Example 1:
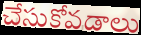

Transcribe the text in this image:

చేసుకోవడాలు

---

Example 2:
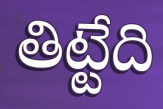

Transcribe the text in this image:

తిట్టేది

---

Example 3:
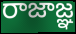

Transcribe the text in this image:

రాజాజ్ఞ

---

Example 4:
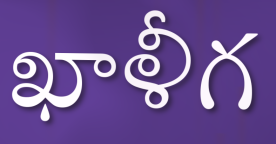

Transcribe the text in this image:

ఖాళీగ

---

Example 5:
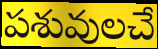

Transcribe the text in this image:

పశువులచే